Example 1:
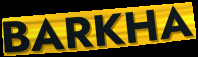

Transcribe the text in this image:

BARKHA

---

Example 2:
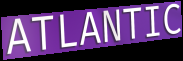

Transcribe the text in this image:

ATLANTIC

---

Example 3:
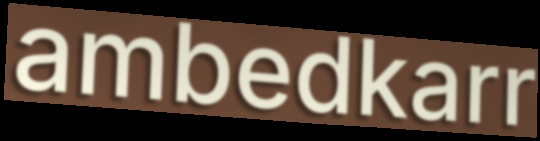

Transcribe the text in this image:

ambedkarr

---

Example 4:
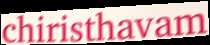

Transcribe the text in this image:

chiristhavam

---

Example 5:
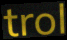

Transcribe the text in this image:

trol